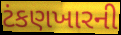
ટંકણખારની